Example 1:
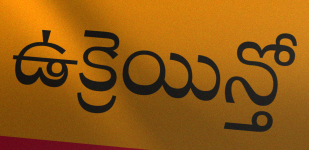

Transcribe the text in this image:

ఉక్రెయిన్తో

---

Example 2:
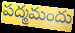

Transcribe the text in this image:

పద్మమందు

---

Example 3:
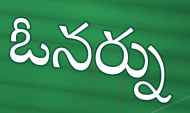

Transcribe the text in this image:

ఓనర్ను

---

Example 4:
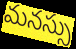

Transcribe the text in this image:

మనస్సు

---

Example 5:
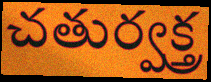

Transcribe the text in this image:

చతుర్వక్త్ర